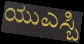
ಯುಎಸ್ಬಿ